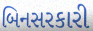
બિનસરકારી